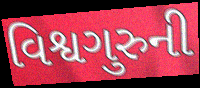
વિશ્વગુરુની